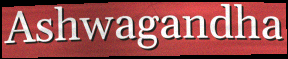
Ashwagandha